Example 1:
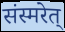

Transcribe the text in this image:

संस्मरेत्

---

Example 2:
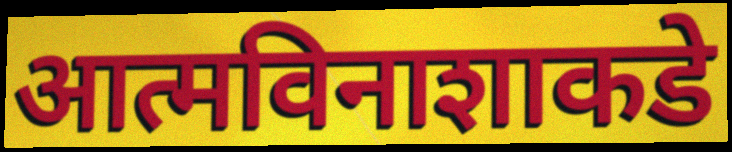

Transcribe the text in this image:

आत्मविनाशाकडे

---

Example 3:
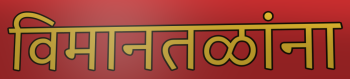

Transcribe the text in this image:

विमानतळांना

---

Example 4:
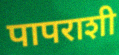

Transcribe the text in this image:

पापराशी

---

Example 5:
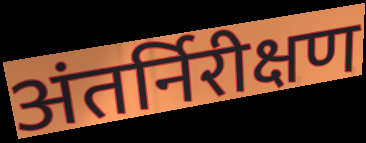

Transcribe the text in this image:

अंतर्निरीक्षण